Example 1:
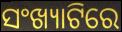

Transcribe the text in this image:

ସଂଖ୍ୟାଟିରେ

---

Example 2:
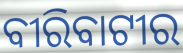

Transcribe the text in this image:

ବୀରିବାଟୀର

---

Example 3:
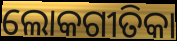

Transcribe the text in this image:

ଲୋକଗୀତିକା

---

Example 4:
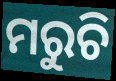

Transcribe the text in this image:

ମରୁଚି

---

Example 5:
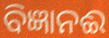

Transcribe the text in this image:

ବିଜ୍ଞାନଈ